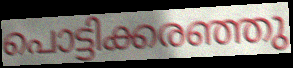
പൊട്ടിക്കരഞ്ഞു